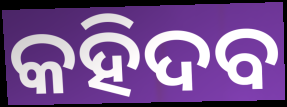
କହିଦବ